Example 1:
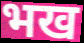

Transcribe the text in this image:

भख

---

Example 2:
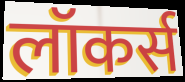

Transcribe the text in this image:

लॉकर्स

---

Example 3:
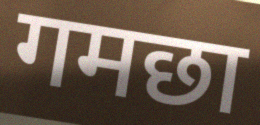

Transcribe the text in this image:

गमछा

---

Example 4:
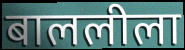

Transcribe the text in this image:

बाललीला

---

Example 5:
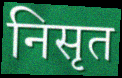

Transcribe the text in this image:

निसृत